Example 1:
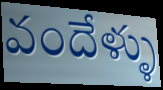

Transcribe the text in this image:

వందేళ్ళు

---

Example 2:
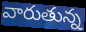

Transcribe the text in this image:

వారుతున్న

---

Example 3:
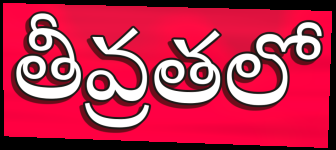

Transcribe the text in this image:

తీవ్రతలో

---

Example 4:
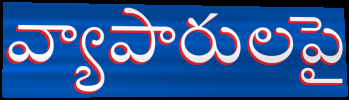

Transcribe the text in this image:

వ్యాపారులపై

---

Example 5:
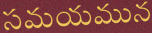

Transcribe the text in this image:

సమయమున